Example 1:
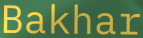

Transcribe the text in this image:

Bakhar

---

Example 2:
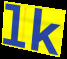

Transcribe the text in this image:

lk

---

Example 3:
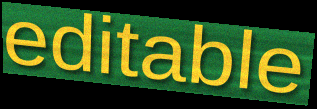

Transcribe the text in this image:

editable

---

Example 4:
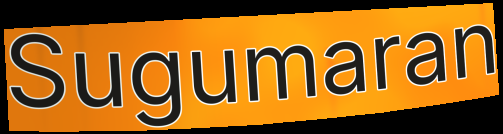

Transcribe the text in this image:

Sugumaran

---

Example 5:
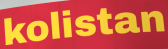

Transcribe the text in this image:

kolistan